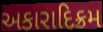
અકારાદિક્રમ